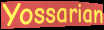
Yossarian